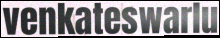
venkateswarlu